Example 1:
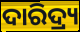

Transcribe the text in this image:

ଦାରିଦ୍ର୍ୟ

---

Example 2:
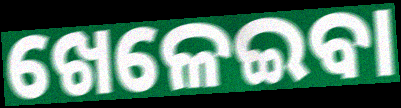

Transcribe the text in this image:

ଖେଳେଇବା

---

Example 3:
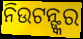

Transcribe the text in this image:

ନିଉଟନ୍ଙ୍କର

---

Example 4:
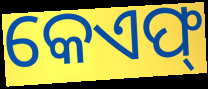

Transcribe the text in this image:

କେଏଫ୍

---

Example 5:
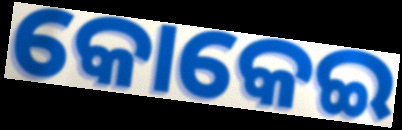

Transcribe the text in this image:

କୋକେଇ